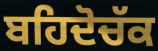
ਬਹਿਦੋਚੱਕ